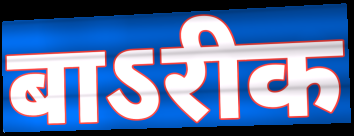
बाऽरीक